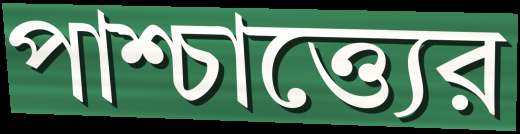
পাশ্চাত্ত্যের